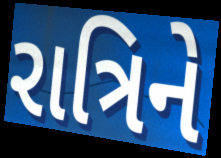
રાત્રિને